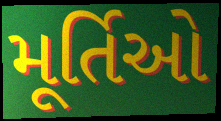
મૂર્તિઓ